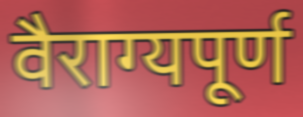
वैराग्यपूर्ण